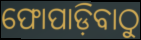
ଫୋପାଡ଼ିବାଠୁ